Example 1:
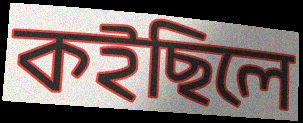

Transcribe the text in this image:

কইছিলে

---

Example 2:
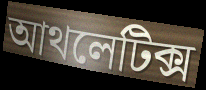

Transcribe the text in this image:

আথলেটিক্স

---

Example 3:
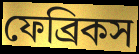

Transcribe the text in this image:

ফেব্রিকস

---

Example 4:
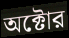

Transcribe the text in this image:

অক্টোর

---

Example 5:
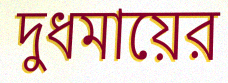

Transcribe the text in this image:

দুধমায়ের